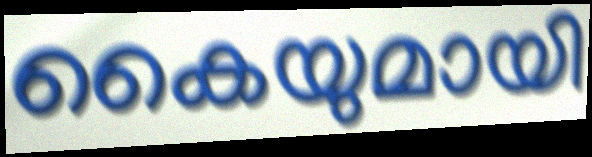
കൈയുമായി